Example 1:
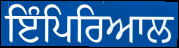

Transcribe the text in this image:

ਇੰਪਿਰਿਆਲ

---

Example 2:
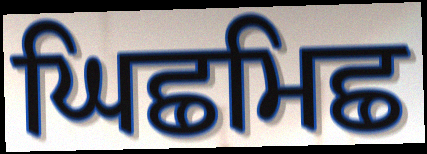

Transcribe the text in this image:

ਘਿਛਮਿਛ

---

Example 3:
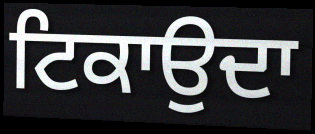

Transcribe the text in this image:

ਟਿਕਾਉਦਾ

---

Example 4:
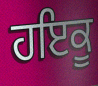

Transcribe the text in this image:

ਹਇਕੂ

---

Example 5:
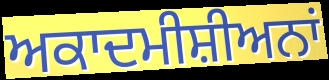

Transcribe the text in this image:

ਅਕਾਦਮੀਸ਼ੀਅਨਾਂ